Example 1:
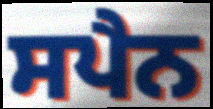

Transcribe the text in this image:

ਸਪੈਨ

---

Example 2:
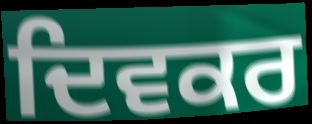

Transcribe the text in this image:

ਦਿਵਕਰ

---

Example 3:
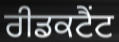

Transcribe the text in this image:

ਰੀਡਕਟੈਂਟ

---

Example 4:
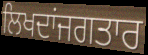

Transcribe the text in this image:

ਲਿਖਦਾਂਜਗਤਾਰ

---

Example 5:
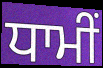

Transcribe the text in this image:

ਧਾਮੀਂ